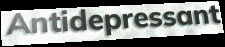
Antidepressant